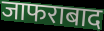
जाफराबाद